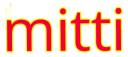
mitti